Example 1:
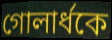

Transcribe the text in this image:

গোলার্ধকে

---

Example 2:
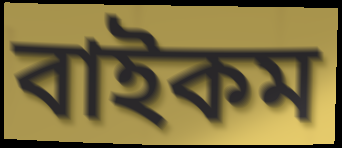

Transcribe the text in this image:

বাইকম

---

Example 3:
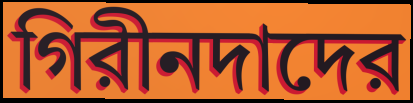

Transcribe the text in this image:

গিরীনদাদের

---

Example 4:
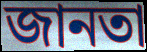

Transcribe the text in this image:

জানতা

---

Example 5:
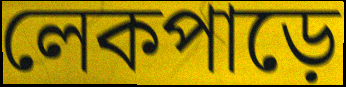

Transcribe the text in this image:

লেকপাড়ে